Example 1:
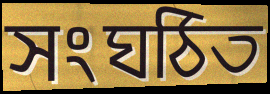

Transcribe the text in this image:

সংঘঠিত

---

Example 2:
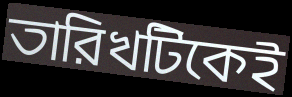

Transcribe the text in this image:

তারিখটিকেই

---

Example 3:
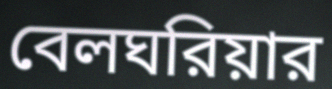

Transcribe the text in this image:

বেলঘরিয়ার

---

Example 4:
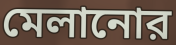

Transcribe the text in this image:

মেলানোর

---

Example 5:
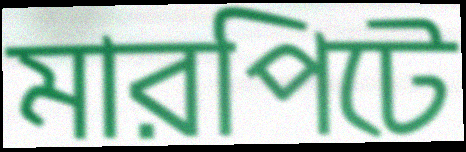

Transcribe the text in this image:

মারপিটে